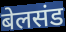
बेलसंड